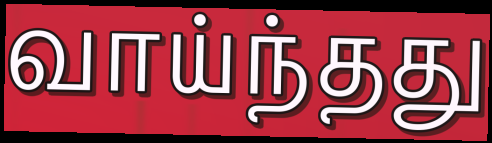
வாய்ந்தது